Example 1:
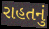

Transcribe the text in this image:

રાહતનું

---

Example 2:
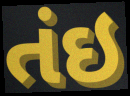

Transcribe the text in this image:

તંઇ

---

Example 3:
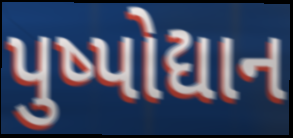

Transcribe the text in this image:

પુષ્પોદ્યાન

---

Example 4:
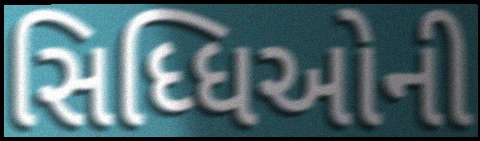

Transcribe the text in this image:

સિધ્ધિઓની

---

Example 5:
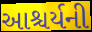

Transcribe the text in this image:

આશ્ચર્યની